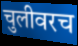
चुलीवरच